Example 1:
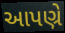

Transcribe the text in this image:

આપણ્રે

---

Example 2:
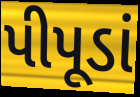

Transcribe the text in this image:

પીપૂડાં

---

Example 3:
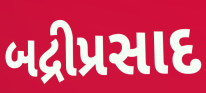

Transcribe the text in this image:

બદ્રીપ્રસાદ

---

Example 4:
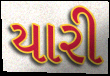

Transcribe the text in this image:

યારી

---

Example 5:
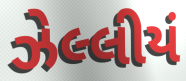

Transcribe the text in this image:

ઝેલ્લીયં